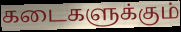
கடைகளுக்கும்